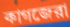
কাগজেরা